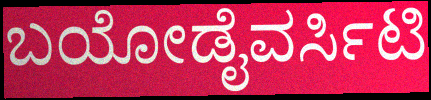
ಬಯೋಡೈವರ್ಸಿಟಿ